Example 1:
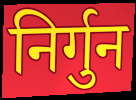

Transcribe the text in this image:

निर्गुन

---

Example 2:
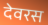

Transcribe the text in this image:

देवरस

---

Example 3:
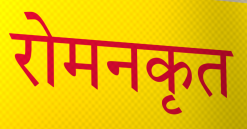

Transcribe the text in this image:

रोमनकृत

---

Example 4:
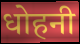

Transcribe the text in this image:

धोहनी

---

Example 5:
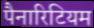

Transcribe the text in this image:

पैनारिटियम